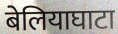
बेलियाघाटा